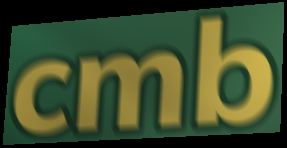
cmb